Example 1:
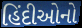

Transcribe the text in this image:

હિંદીઓનો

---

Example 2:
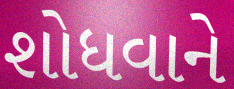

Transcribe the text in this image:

શોધવાને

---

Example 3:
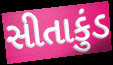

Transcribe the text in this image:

સીતાકુંડ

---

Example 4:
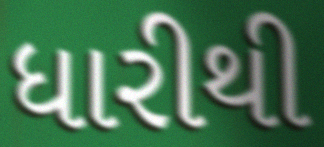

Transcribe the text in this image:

ધારીથી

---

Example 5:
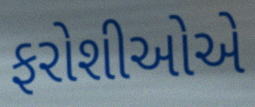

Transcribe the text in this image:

ફરોશીઓએ